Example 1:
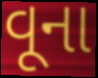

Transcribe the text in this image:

વૂના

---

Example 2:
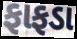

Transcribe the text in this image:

ફાફડા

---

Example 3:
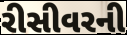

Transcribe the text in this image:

રીસીવરની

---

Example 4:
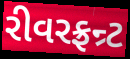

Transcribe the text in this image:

રીવરફ્રન્ર્ટ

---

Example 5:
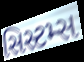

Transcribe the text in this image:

સિસ્ટમ્સ